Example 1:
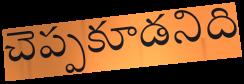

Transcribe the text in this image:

చెప్పకూడనిది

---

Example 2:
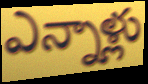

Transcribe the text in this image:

ఎన్నాళ్లు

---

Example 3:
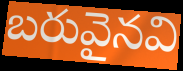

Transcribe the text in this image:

బరువైనవి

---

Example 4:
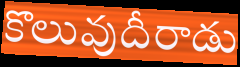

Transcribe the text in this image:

కొలువుదీరాడు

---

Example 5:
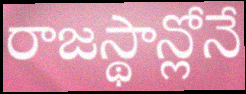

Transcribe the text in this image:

రాజస్థాన్లోనే